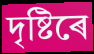
দৃষ্টিৰে